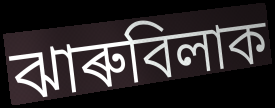
ঝাৰুবিলাক